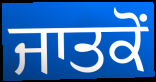
ਜਾਤਕੋਂ